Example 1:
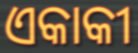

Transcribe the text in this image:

ଏକାକୀ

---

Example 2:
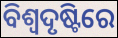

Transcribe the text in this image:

ବିଶ୍ଵଦୃଷ୍ଟିରେ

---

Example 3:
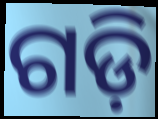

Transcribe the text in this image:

ଗଡ଼ି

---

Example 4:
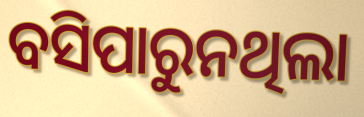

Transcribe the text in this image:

ବସିପାରୁନଥିଲା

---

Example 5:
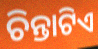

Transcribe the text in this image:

ଚିନ୍ତାଟିଏ